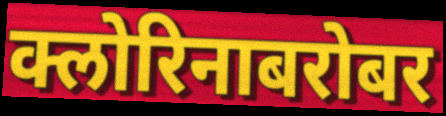
क्लोरिनाबरोबर